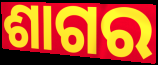
ଶାଗର